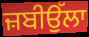
ਜ਼ਬੀਉੱਲਾ